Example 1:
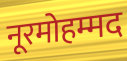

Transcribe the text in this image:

नूरमोहम्मद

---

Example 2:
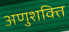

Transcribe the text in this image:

अणुशक्ति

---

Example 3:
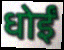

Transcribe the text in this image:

धोईं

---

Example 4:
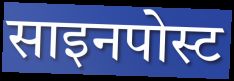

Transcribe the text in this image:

साइनपोस्ट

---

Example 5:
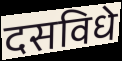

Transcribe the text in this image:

दसविधे